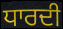
ਧਾਰਦੀ